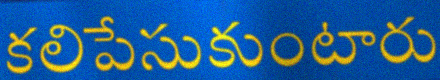
కలిపేసుకుంటారు